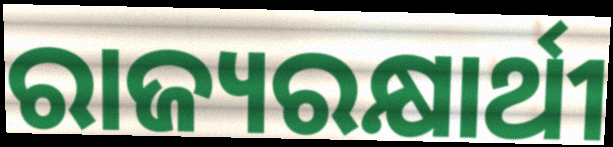
ରାଜ୍ୟରକ୍ଷାର୍ଥୀ